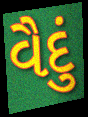
વૈદું